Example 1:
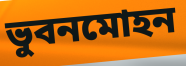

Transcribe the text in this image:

ভুবনমোহন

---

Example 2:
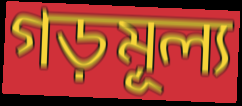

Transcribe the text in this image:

গড়মূল্য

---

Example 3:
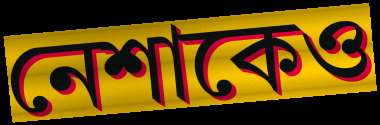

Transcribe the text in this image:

নেশাকেও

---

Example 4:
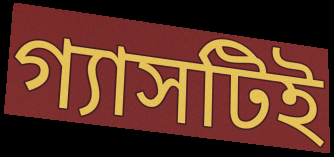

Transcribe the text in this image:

গ্যাসটিই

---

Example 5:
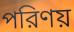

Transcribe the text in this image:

পরিণয়